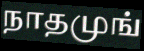
நாதமுங்